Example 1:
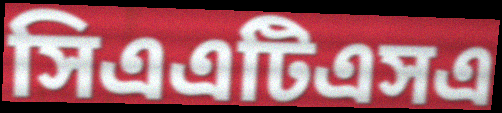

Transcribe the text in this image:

সিএএটিএসএ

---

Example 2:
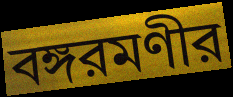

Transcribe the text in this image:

বঙ্গরমণীর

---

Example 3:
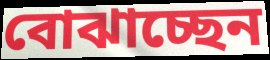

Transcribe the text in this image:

বোঝাচ্ছেন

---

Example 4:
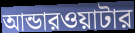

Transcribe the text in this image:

আন্ডারওয়াটার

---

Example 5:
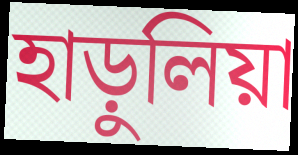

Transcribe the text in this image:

হাড়ুলিয়া